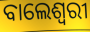
ବାଲେଶ୍ୱରୀ